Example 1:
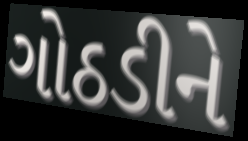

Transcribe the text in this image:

ગોઠડીને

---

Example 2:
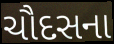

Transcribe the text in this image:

ચૌદસના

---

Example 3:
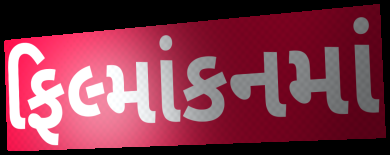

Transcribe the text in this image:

ફિલ્માંકનમાં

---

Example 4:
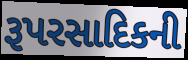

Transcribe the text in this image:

રૂપરસાદિકની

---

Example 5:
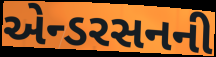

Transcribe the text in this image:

એન્ડરસનની